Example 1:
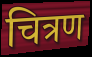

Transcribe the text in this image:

चित्रण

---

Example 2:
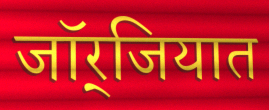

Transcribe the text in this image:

जॉर्जियात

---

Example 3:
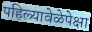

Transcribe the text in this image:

पहिल्यावेळेपेक्षा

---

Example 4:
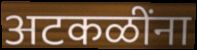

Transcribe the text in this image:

अटकळींना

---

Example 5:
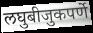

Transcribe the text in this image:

लघुबीजुकपर्णे